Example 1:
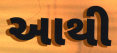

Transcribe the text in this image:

આથી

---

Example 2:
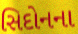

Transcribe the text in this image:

સિદોનના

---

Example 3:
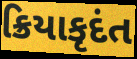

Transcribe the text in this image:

ક્રિયાકૃદંત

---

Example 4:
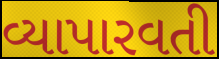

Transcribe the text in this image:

વ્યાપારવતી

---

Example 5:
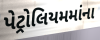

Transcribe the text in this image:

પેટ્રોલિયમમાંના